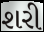
શરી